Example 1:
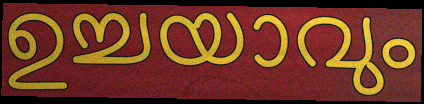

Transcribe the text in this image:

ഉച്ചയാവും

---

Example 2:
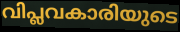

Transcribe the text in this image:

വിപ്ലവകാരിയുടെ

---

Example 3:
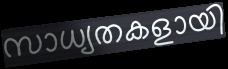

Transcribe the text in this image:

സാധ്യതകളായി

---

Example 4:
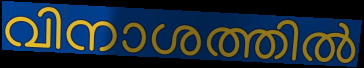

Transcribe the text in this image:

വിനാശത്തിൽ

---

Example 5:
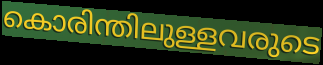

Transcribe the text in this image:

കൊരിന്തിലുള്ളവരുടെ